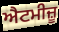
ਐਟਮੀਜ਼ੂ